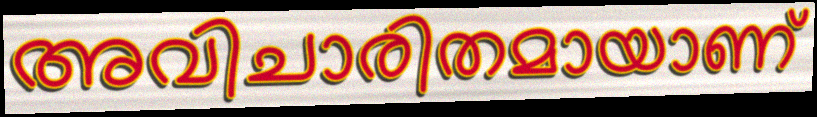
അവിചാരിതമായാണ്